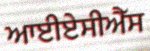
ਆਈਏਸੀਐੱਸ